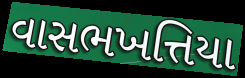
વાસભખત્તિયા